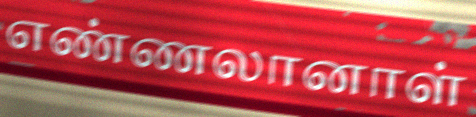
எண்ணலானாள்